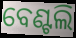
ବେଣ୍ଟଲି